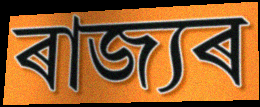
ৰাজ্যৰ